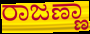
ರಾಜಣ್ಣಾ